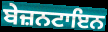
ਬੇਜ਼ਨਟਾਇਨ